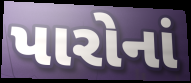
પારોનાં